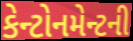
કેન્ટોનમેન્ટની